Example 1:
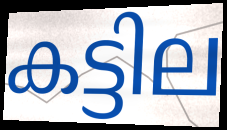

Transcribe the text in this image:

കട്ടില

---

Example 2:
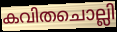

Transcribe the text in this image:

കവിതചൊല്ലി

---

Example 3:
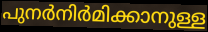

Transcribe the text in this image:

പുനർനിർമിക്കാനുള്ള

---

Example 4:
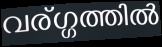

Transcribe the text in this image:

വര്ഗ്ഗത്തിൽ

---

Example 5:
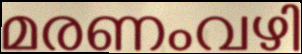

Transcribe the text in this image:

മരണംവഴി